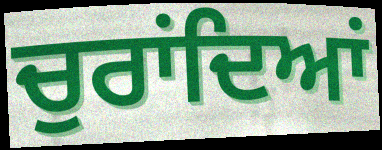
ਚੁਰਾਂਦਿਆਂ